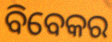
ବିବେକର